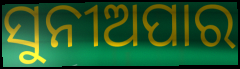
ସୁନୀଅପାର